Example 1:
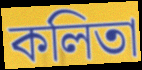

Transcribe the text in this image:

কলিতা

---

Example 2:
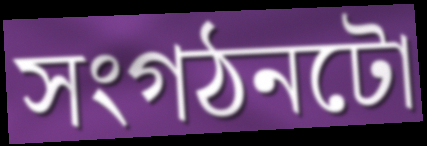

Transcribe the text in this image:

সংগঠনটো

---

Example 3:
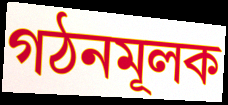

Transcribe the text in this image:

গঠনমূলক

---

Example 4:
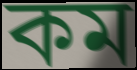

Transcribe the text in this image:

কম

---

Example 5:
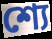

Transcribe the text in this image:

শ্যে